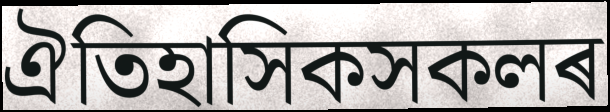
ঐতিহাসিকসকলৰ